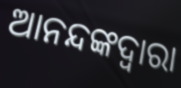
ଆନନ୍ଦଙ୍କଦ୍ୱାରା